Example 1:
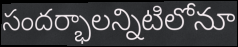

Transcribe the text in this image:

సందర్భాలన్నిటిలోనూ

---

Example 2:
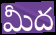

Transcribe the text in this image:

మీద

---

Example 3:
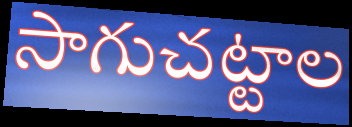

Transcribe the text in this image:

సాగుచట్టాల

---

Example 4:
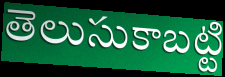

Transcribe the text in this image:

తెలుసుకాబట్టి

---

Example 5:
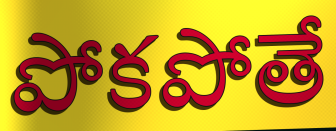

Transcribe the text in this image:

పోకపోతే